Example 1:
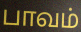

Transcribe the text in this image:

பாவம்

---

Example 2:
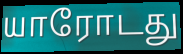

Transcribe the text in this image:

யாரோடது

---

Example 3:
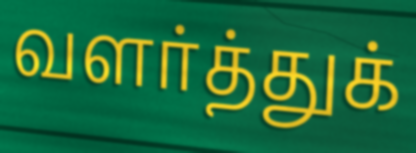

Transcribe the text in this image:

வளர்த்துக்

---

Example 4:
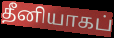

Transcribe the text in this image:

தீனியாகப்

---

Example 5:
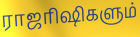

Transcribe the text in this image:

ராஜரிஷிகளும்